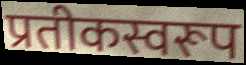
प्रतीकस्वरूप